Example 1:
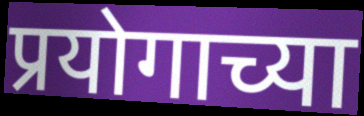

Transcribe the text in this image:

प्रयोगाच्या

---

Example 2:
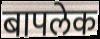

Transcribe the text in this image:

बापलेक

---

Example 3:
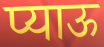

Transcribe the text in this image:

प्याऊ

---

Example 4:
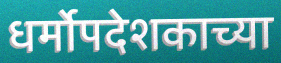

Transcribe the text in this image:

धर्मोपदेशकाच्या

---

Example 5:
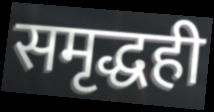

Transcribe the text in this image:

समृद्धही